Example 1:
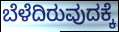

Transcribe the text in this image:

ಬೆಳೆದಿರುವುದಕ್ಕೆ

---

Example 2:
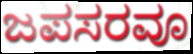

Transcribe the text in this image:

ಜಪಸರವೂ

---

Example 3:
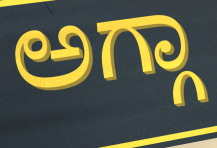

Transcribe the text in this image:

ಅಗ್ಗಾ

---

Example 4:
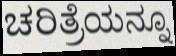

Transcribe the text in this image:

ಚರಿತ್ರೆಯನ್ನೂ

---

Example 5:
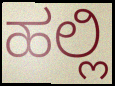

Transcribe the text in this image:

ಹಲ್ಲಿ